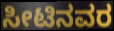
ಸೀಟಿನವರ